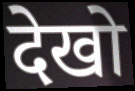
देखो